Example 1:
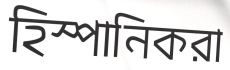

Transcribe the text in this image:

হিস্পানিকরা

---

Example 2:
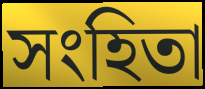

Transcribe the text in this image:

সংহিতা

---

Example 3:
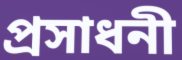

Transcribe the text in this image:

প্রসাধনী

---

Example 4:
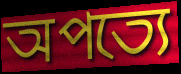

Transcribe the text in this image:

অপত্যে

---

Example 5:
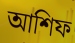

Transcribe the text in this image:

আশিফ